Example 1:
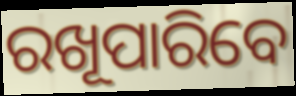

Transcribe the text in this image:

ରଖୂପାରିବେ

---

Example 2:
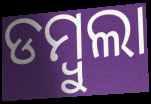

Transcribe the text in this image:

ଡମ୍ୱୁଲା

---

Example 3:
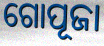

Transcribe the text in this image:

ଗୋପୂଜା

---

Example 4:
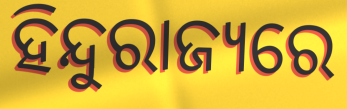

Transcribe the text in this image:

ହିନ୍ଦୁରାଜ୍ୟରେ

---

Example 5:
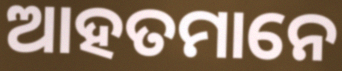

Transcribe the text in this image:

ଆହତମାନେ